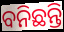
ବନିଛନ୍ତି